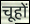
चूहों